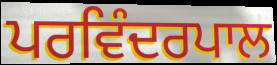
ਪਰਵਿੰਦਰਪਾਲ